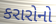
કરારોનો